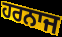
ਹਰਨਾਜ